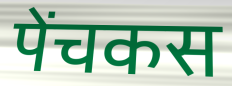
पेंचकस